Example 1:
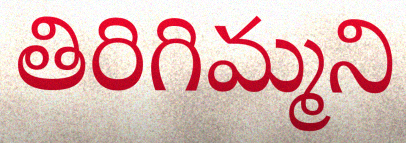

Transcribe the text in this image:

తిరిగిమ్మని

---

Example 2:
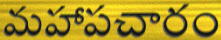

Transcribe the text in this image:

మహాపచారం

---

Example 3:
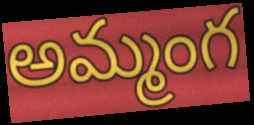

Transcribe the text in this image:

అమ్మంగ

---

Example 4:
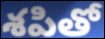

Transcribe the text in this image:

శపితో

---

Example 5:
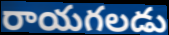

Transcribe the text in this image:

రాయగలడు